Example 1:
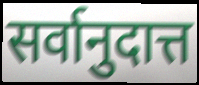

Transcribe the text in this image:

सर्वानुदात्त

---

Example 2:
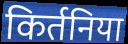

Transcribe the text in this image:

किर्तनिया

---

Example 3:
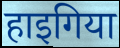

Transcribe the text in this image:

हाइगिया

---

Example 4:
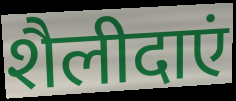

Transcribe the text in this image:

शैलीदाएं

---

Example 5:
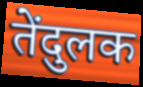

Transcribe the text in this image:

तेंदुलक